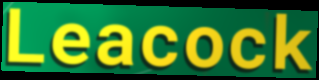
Leacock